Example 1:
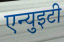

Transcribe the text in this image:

एन्युइटी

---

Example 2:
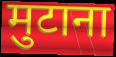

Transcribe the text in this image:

मुटाना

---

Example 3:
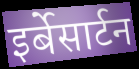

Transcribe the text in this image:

इर्बेसार्टन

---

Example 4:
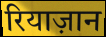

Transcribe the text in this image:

रियाज़ान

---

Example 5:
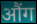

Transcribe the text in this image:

औंग